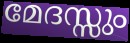
മേദസ്സും